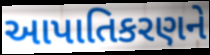
આપાતિકરણને